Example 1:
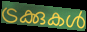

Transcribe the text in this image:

ട്രക്കുകൾ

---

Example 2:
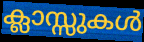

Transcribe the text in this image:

ക്ലാസ്സുകൾ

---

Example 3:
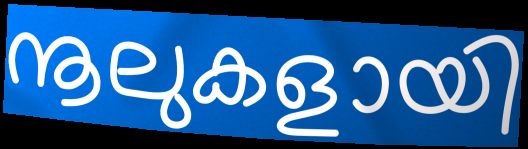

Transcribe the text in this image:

നൂലുകളായി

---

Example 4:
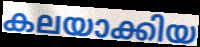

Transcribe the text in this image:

കലയാക്കിയ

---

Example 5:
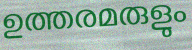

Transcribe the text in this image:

ഉത്തരമരുളും